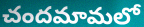
చందమామలో